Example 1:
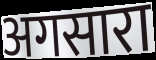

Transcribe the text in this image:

अगसारा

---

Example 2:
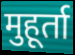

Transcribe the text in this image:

मुहूर्ता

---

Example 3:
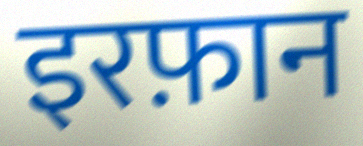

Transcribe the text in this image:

इरफ़ान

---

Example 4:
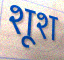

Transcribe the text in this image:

शूश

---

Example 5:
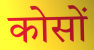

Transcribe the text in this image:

कोसों